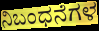
ನಿಬಂಧನೆಗಳ